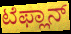
ಟೆಫ್ಲಾನ್